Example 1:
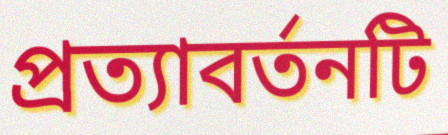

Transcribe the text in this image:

প্রত্যাবর্তনটি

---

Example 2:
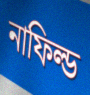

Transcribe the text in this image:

নাফিল্ড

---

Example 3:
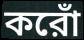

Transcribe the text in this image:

করোঁ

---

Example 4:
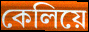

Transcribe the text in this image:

কেলিয়ে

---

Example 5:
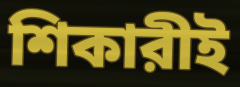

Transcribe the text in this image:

শিকারীই